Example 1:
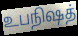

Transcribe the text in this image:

உபநிஷத்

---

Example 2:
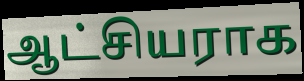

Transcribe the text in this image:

ஆட்சியராக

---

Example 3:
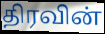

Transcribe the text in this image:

திரவின்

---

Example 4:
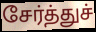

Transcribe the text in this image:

சேர்த்துச்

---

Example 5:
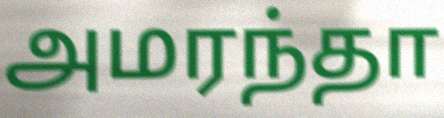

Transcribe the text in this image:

அமரந்தா